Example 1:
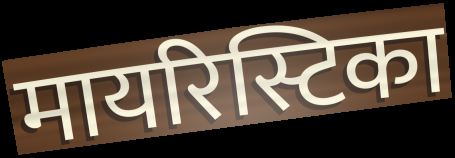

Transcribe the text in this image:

मायरिस्टिका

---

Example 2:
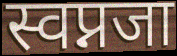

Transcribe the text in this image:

स्वप्नजा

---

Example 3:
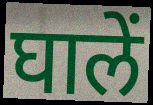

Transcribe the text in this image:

घालें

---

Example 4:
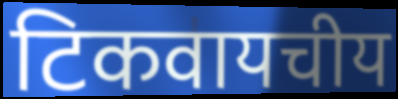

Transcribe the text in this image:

टिकवायचीय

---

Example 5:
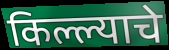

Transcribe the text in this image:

किल्ल्याचे